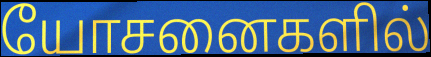
யோசனைகளில்